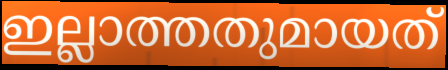
ഇല്ലാത്തതുമായത്